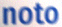
noto